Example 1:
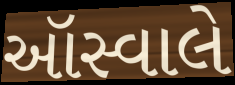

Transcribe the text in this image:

ઑસ્વાલે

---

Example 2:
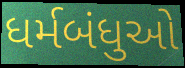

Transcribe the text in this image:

ધર્મબંધુઓ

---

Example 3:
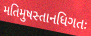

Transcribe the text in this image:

મતિમુષસ્તાનધિગતઃ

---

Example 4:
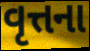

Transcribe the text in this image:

વૃત્તના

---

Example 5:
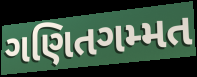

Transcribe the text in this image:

ગણિતગમ્મત